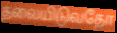
தலையிடுவதோ